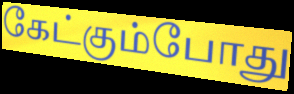
கேட்கும்போது